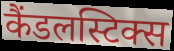
कैंडलस्टिक्स